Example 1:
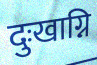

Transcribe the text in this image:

दुःखाग्नि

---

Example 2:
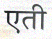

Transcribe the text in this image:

एती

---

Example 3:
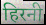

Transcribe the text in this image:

हिरनी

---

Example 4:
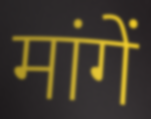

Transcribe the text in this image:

मांगें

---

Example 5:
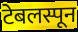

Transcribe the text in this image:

टेबलस्पून